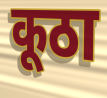
कूठा